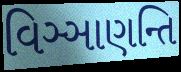
વિઞ્ઞાણન્તિ